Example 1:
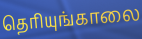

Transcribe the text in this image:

தெரியுங்காலை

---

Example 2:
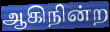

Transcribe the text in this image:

ஆகிநின்ற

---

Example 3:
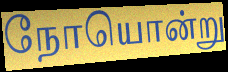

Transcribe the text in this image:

நோயொன்று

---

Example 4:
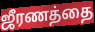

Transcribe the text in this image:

ஜீரணத்தை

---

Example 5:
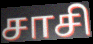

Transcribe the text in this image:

சாசி